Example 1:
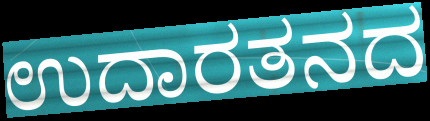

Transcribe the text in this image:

ಉದಾರತನದ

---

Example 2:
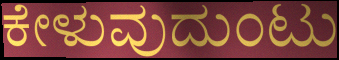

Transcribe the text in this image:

ಕೇಳುವುದುಂಟು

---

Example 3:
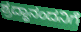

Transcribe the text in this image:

ಶ್ರದ್ಧಾನಂದನಿಗೆ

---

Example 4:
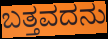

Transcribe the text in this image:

ಬತ್ತವದನು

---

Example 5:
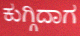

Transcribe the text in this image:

ಕುಗ್ಗಿದಾಗ